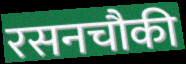
रसनचौकी